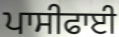
ਪਾਸੀਫਾਈ